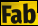
Fab